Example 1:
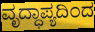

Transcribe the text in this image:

ವೃದ್ಧಾಪ್ಯದಿಂದ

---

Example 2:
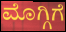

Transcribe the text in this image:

ಮೊಗ್ಗಿಗೆ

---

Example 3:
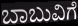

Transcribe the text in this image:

ಬಾಬುವಿಗೆ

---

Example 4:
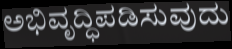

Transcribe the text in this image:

ಅಭಿವೃದ್ಧಿಪಡಿಸುವುದು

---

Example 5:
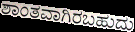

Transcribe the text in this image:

ಶಾಂತವಾಗಿರಬಹುದು